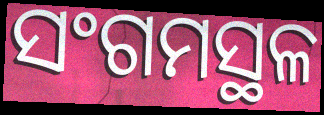
ସଂଗମସ୍ଥଳ